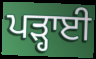
ਪੜ੍ਹਾਈ